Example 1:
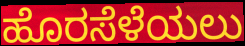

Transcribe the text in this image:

ಹೊರಸೆಳೆಯಲು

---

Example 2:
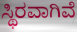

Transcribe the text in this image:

ಸ್ಥಿರವಾಗಿವೆ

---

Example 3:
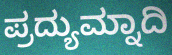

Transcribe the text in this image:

ಪ್ರದ್ಯುಮ್ನಾದಿ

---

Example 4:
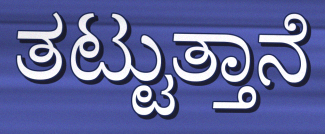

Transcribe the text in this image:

ತಟ್ಟುತ್ತಾನೆ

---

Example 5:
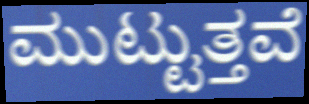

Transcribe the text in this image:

ಮುಟ್ಟುತ್ತವೆ